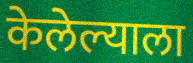
केलेल्याला